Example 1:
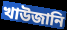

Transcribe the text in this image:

খাউজানি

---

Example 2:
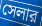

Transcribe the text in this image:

সেলার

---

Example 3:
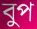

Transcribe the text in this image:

বুপ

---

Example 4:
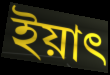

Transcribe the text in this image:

ইয়াৎ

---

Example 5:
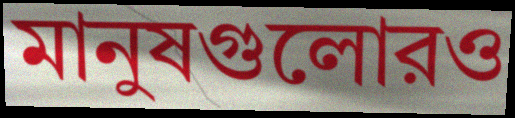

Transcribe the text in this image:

মানুষগুলোরও